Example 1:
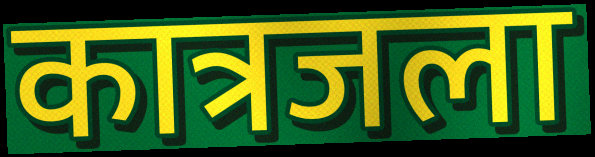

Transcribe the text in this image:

कात्रजला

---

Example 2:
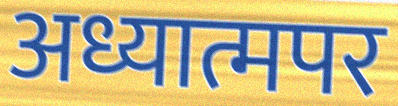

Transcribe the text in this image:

अध्यात्मपर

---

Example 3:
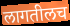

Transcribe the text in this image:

लागतीलच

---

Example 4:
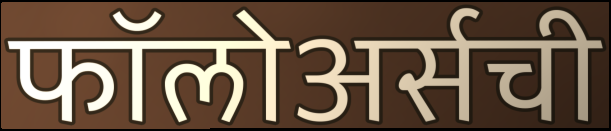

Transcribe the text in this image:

फॉलोअर्सची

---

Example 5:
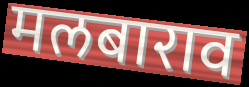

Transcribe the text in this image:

मलबाराव